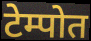
टेम्पोत